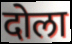
दोला